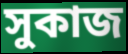
সুকাজ